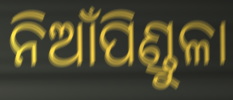
ନିଆଁପିଣ୍ଡୁଳା